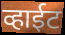
व्हाईट